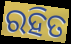
ରହିତ